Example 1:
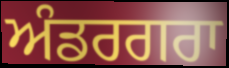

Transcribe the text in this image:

ਅੰਡਰਗਰਾ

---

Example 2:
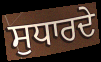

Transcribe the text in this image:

ਸੁਧਾਰਦੇ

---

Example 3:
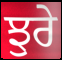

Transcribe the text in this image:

ਝੁਰੇ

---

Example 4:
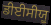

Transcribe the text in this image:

ਡੀਈਸੀਯੂ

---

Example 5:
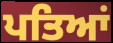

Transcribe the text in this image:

ਪਤਿਆਂ